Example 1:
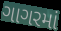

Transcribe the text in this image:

ગાગરમાં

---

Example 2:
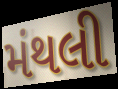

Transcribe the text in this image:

મંથલી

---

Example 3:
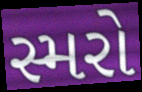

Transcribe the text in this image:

સ્મરો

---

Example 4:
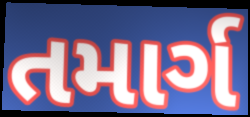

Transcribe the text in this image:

તમાર્ગ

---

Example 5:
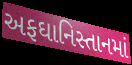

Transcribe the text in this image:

અફઘાનિસ્તાનમાં